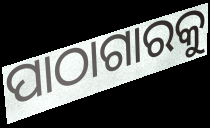
ପାଠାଗାରକୁ